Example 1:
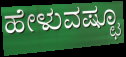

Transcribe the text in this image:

ಹೇಳುವಷ್ಟೂ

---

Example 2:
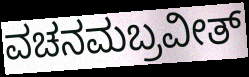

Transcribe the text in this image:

ವಚನಮಬ್ರವೀತ್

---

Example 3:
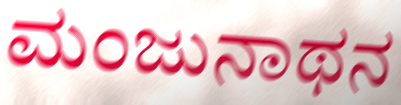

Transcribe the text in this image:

ಮಂಜುನಾಥನ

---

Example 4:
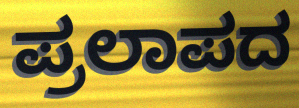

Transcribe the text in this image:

ಪ್ರಲಾಪದ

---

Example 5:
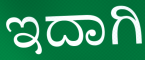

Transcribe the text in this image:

ಇದಾಗಿ